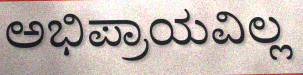
ಅಭಿಪ್ರಾಯವಿಲ್ಲ